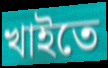
খাইতে